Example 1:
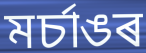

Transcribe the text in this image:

মৰ্চাঙৰ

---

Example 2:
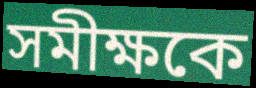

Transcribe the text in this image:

সমীক্ষকে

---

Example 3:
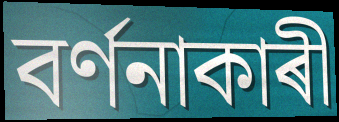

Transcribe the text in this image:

বৰ্ণনাকাৰী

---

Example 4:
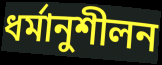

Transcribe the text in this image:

ধৰ্মানুশীলন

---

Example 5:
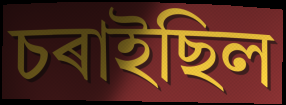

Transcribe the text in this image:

চৰাইছিল